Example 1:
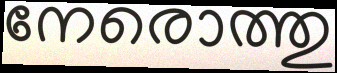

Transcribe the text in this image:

നേരൊത്തു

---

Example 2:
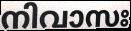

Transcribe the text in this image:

നിവാസഃ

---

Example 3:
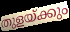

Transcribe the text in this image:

തുളയ്ക്കും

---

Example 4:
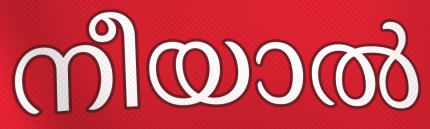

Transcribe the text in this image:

നീയാൽ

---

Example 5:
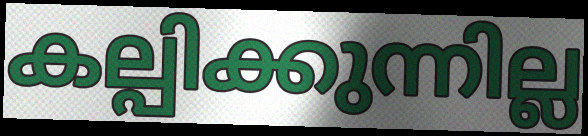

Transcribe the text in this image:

കല്പിക്കുന്നില്ല